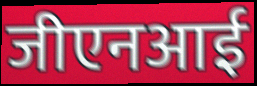
जीएनआई